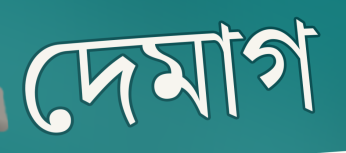
দেমাগ